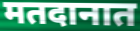
मतदानात